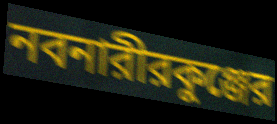
নবনারীরকুঞ্জের